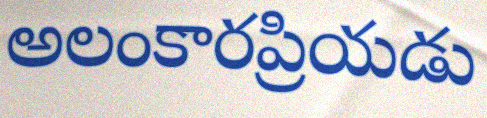
అలంకారప్రియడు